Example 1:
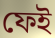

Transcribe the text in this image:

ফেই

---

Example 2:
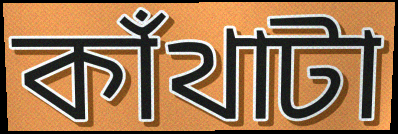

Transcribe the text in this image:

কাঁথাটা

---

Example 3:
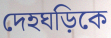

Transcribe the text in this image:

দেহঘড়িকে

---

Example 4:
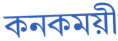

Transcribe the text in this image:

কনকময়ী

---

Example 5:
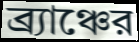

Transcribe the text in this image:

ব্র্যাঞ্চের